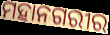
ମହାନଗରୀର